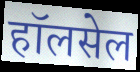
हॉलसेल